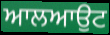
ਆਲਆਉਟ